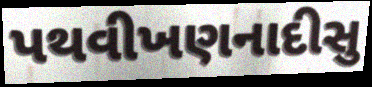
પથવીખણનાદીસુ